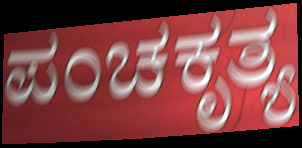
ಪಂಚಕೃತ್ಯ